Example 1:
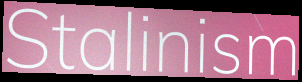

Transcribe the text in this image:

Stalinism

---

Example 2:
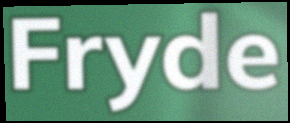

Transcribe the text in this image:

Fryde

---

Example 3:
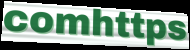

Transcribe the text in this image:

comhttps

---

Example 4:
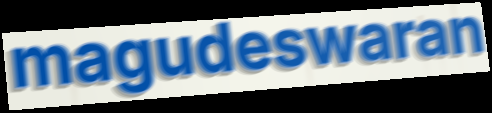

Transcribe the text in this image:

magudeswaran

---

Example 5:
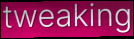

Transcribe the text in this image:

tweaking